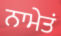
ਨਾਮੇਤਂ